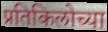
प्रतिकिलोच्या